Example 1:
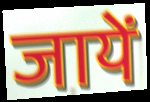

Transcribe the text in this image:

जायें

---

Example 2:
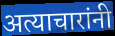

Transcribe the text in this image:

अत्याचारांनी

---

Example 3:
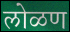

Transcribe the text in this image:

लोळण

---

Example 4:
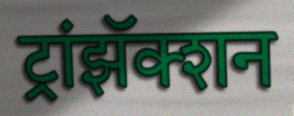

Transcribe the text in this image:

ट्रांझॅक्शन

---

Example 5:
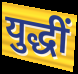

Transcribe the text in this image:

युद्धीं